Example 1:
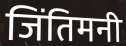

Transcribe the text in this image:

जिंतिमनी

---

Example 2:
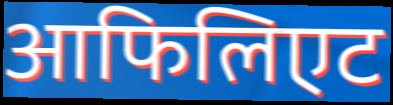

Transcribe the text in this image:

आफिलिएट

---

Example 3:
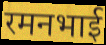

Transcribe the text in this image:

रमनभाई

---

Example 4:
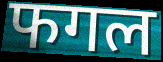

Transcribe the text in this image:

फगल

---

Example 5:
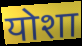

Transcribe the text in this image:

योशा